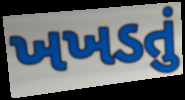
ખખડતું